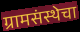
ग्रामसंस्थेचा